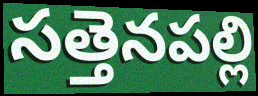
సత్తెనపల్లి